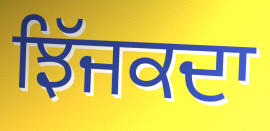
ਝਿੱਜਕਦਾ